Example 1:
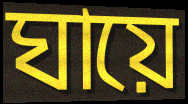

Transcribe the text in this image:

ঘায়ে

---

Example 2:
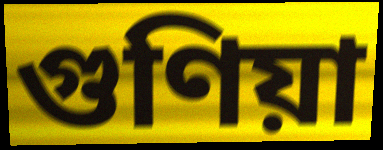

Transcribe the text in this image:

গুণিয়া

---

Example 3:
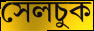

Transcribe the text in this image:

সেলচুক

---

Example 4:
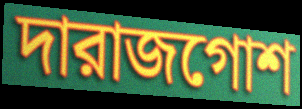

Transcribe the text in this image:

দারাজগোশ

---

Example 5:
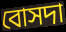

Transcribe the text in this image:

বোসদা